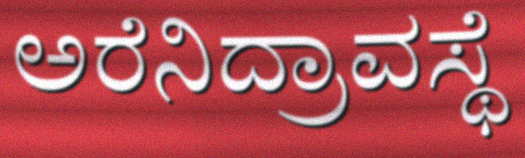
ಅರೆನಿದ್ರಾವಸ್ಥೆ